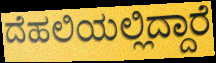
ದೆಹಲಿಯಲ್ಲಿದ್ದಾರೆ